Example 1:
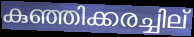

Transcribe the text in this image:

കുഞ്ഞിക്കരച്ചില്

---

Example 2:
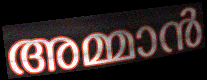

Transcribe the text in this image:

അമ്മാൻ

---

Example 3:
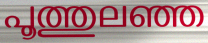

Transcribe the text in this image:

പൂത്തുലഞ്ഞ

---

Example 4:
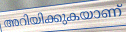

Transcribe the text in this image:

അറിയിക്കുകയാണ്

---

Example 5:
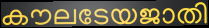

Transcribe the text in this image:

കൗലടേയജാതി